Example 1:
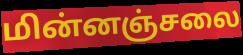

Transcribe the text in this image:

மின்னஞ்சலை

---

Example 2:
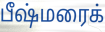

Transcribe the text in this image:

பீஷ்மரைக்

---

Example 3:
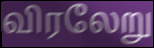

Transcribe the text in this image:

விரலேறு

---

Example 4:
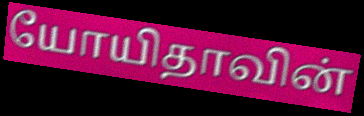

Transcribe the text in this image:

யோயிதாவின்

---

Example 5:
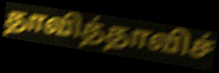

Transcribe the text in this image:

தாவித்தாவிச்